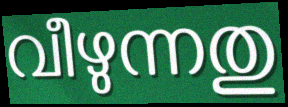
വീഴുന്നതു